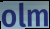
olm